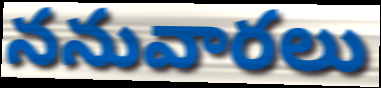
ననువారలు